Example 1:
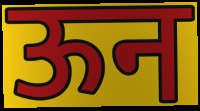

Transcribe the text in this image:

ऊन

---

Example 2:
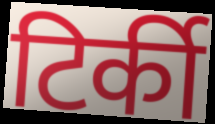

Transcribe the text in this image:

टिर्की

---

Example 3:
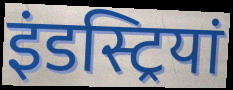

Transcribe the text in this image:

इंडस्ट्रियां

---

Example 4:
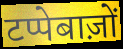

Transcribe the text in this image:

टप्पेबाज़ों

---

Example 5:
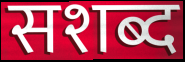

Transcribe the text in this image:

सशब्द